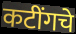
कटींगचे